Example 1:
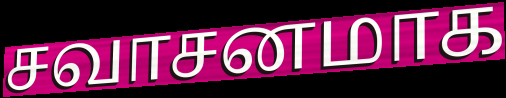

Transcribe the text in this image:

சவாசனமாக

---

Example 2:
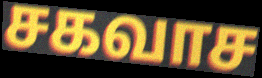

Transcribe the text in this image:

சகவாச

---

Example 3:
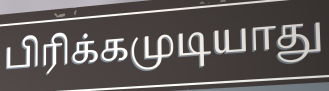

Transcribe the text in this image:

பிரிக்கமுடியாது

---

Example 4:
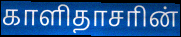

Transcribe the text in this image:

காளிதாசரின்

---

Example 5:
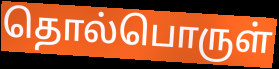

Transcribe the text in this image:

தொல்பொருள்